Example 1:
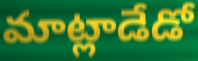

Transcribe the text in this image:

మాట్లాడేడో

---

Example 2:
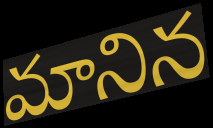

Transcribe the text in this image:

మానిన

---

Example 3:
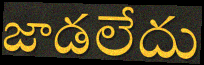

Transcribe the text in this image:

జాడలేదు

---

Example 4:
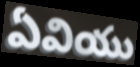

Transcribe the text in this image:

ఏవియు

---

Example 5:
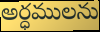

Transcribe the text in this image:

అర్ధములను